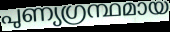
പുണ്യഗ്രന്ഥമായ